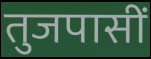
तुजपासीं